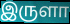
இருளா